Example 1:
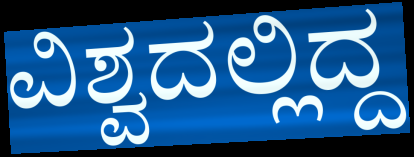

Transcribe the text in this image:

ವಿಶ್ವದಲ್ಲಿದ್ದ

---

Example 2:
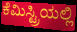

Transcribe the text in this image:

ಕೆಮಿಸ್ಟ್ರಿಯಲ್ಲಿ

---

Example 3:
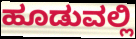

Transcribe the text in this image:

ಹೂಡುವಲ್ಲಿ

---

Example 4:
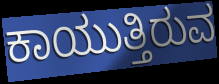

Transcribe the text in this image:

ಕಾಯುತ್ತಿರುವ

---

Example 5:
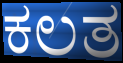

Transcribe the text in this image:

ಕಲತ